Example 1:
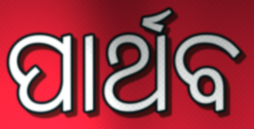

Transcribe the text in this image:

ପାର୍ଥବ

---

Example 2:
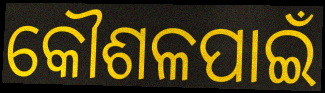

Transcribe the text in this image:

କୌଶଳପାଇଁ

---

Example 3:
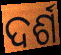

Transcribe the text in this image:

ଦର୍ଶ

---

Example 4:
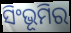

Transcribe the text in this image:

ସିଂଭୂମିର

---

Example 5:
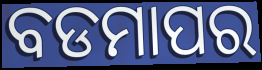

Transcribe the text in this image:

ବଡମାପର